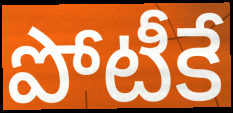
పోటీకే